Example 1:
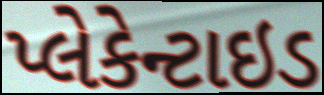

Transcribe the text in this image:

પ્લેકેન્ટાઇડ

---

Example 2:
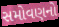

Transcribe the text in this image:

સમોવણનો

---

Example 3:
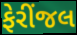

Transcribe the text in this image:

ફેરીંજલ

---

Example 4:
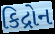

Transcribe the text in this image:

કિદ્રોન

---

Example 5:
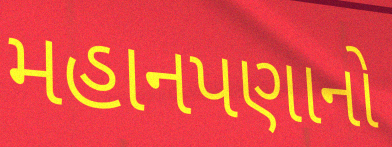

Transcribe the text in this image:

મહાનપણાનો